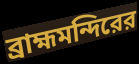
ব্রাহ্মমন্দিরের